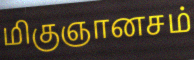
மிகுஞானசம்